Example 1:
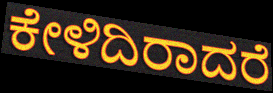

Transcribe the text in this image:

ಕೇಳಿದಿರಾದರೆ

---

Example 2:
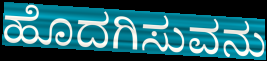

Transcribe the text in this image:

ಹೊದಗಿಸುವನು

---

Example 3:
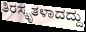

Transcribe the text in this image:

ತಿರಸ್ಕೃತಳಾದದ್ದು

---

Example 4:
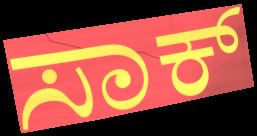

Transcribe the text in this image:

ಸಾಕ್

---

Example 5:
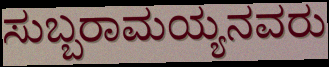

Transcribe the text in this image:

ಸುಬ್ಬರಾಮಯ್ಯನವರು